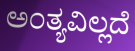
ಅಂತ್ಯವಿಲ್ಲದೆ